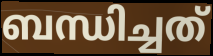
ബന്ധിച്ചത്